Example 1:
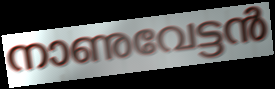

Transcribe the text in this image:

നാണുവേട്ടൻ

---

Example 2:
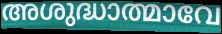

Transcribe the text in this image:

അശുദ്ധാത്മാവേ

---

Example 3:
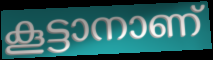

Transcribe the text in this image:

കൂട്ടാനാണ്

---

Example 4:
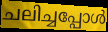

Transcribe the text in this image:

ചലിച്ചപ്പോൾ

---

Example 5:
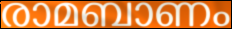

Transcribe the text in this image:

രാമബാണം